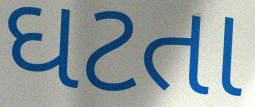
ઘટતા